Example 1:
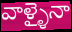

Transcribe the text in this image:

వాళ్ళైనా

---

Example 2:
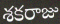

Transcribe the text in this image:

శకరాజు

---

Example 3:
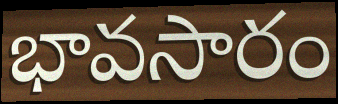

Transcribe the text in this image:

భావసారం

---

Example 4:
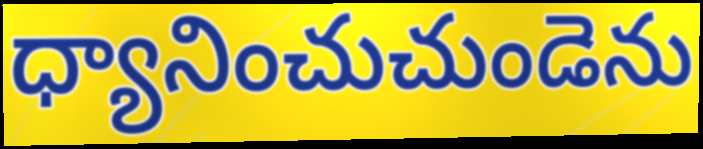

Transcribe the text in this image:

ధ్యానించుచుండెను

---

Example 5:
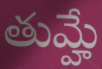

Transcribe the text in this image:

తుమ్హే